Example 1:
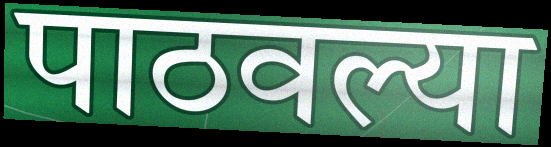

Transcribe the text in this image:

पाठवल्या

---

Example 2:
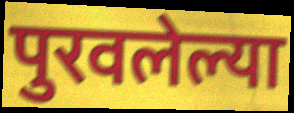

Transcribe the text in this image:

पुरवलेल्या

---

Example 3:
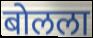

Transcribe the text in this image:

बोलला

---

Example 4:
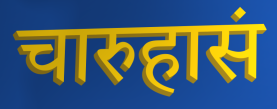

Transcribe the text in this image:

चारुहासं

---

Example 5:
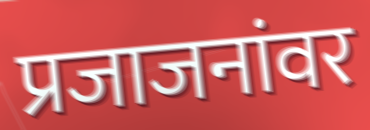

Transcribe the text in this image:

प्रजाजनांवर